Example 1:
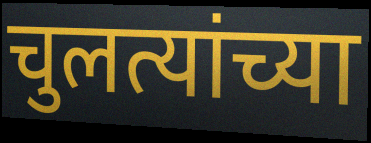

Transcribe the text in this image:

चुलत्यांच्या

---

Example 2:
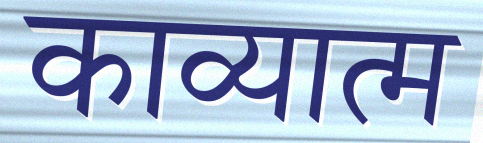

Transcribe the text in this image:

काव्यात्म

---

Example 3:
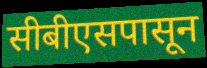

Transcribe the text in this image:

सीबीएसपासून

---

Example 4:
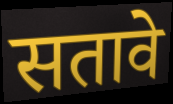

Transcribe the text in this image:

सतावे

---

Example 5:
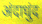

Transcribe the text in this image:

अंदाधुंद